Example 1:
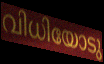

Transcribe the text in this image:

വിധിയോടു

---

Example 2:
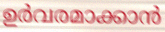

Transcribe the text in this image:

ഉർവരമാക്കാൻ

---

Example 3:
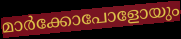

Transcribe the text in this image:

മാർക്കോപോളോയും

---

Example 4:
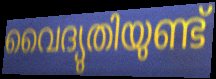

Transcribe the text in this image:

വൈദ്യുതിയുണ്ട്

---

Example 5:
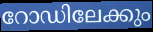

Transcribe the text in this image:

റോഡിലേക്കും